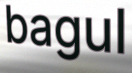
bagul